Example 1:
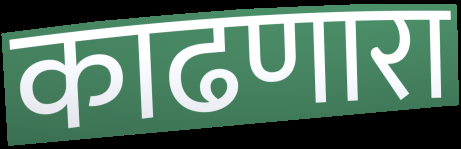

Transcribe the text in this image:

काढणारा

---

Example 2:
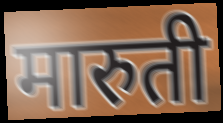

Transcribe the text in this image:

मारुती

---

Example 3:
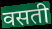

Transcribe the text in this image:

वसती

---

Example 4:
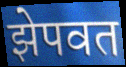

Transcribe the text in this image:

झेपवत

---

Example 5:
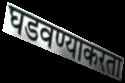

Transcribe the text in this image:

घडवण्याकरता